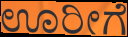
ಊರೀಗೆ